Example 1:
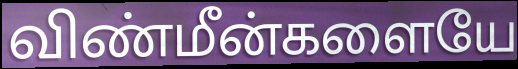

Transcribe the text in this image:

விண்மீன்களையே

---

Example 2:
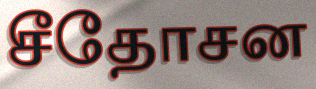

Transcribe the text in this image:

சீதோசன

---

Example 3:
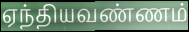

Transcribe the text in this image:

ஏந்தியவண்ணம்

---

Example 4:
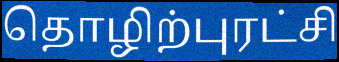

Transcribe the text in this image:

தொழிற்புரட்சி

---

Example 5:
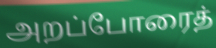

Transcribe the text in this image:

அறப்போரைத்